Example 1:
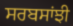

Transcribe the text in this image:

ਸਰਬਸਾਂਝੀ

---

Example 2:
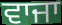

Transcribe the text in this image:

ਵਾਜਾ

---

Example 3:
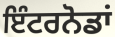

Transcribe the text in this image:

ਇੰਟਰਨੋਡਾਂ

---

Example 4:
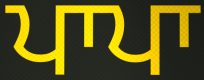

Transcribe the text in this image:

ਪਾਪਾ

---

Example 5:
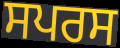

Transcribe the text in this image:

ਸਪਰਸ